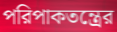
পরিপাকতন্ত্রের